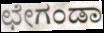
ಛೇಗಂಡಾ